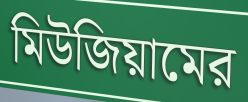
মিউজিয়ামের